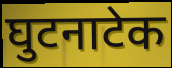
घुटनाटेक